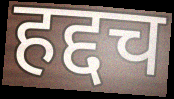
हद्दच